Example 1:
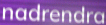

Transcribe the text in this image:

nadrendra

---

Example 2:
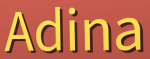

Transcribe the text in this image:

Adina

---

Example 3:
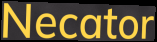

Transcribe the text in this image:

Necator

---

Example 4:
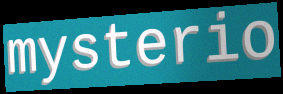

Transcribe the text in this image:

mysterio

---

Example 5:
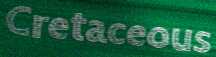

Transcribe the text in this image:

Cretaceous